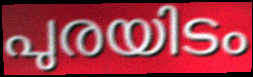
പുരയിടം